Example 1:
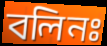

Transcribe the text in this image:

বলিনঃ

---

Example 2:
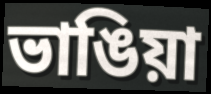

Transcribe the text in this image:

ভাঙিয়া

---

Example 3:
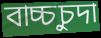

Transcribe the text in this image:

বাচ্চচুদা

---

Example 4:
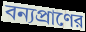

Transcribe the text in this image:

বন্যপ্রাণের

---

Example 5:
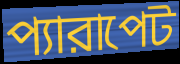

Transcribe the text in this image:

প্যারাপেট